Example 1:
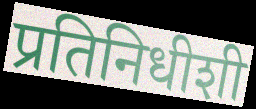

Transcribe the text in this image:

प्रतिनिधीशी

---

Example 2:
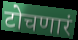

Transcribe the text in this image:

टोचणारं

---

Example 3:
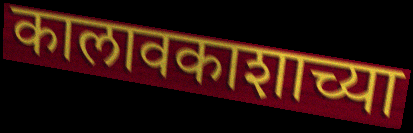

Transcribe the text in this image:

कालावकाशाच्या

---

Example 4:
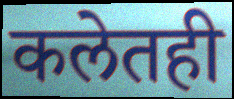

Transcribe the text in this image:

कलेतही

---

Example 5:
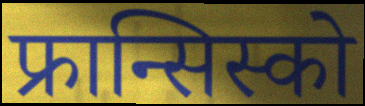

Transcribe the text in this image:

फ्रान्सिस्को